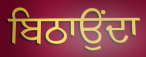
ਬਿਠਾਉਂਦਾ